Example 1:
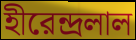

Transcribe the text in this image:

হীরেন্দ্রলাল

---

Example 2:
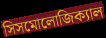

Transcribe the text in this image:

সিসমোলোজিক্যাল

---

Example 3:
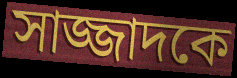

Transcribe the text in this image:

সাজ্জাদকে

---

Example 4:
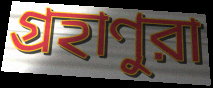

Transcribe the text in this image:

গ্রহাণুরা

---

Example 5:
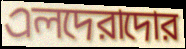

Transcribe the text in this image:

এলদেরাদোর